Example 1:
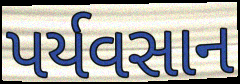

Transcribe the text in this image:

પર્યવસાન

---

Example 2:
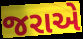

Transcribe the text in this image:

જરાએ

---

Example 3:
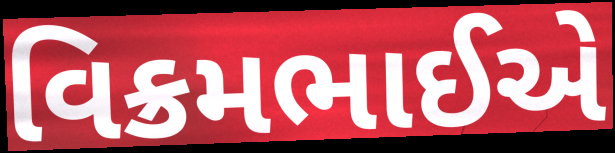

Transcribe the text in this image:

વિક્રમભાઈએ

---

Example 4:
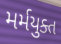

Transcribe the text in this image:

મર્મયુક્ત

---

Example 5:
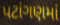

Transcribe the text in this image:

પટાંગણમાં